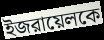
ইজরায়েলকে